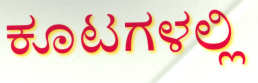
ಕೂಟಗಳಲ್ಲಿ